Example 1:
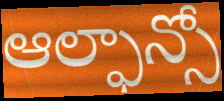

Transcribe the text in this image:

ఆల్ఫాన్సో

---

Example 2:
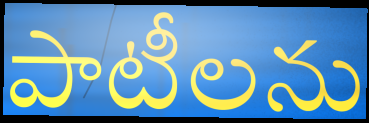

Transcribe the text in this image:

పాటీలను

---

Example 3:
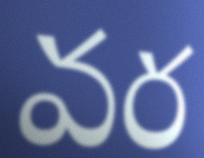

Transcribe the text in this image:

వర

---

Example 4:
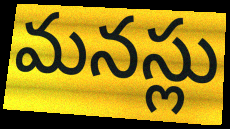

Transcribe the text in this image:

మనస్లు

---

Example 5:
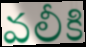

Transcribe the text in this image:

వలీకి